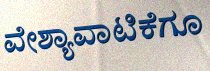
ವೇಶ್ಯಾವಾಟಿಕೆಗೂ